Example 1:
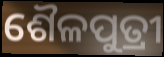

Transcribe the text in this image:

ଶୈଳପୁତ୍ରୀ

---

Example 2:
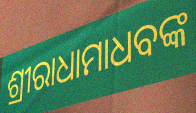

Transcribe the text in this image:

ଶ୍ରୀରାଧାମାଧବଙ୍କ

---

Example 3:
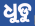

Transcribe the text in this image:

ଧୁଡୁ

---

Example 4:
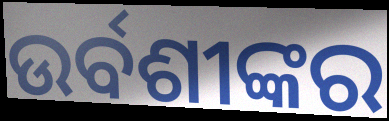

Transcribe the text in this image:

ଉର୍ବଶୀଙ୍କର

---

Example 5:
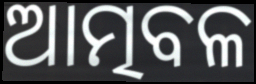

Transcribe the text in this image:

ଆତ୍ମବଳ